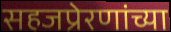
सहजप्रेरणांच्या